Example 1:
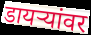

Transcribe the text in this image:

डायऱ्यांवर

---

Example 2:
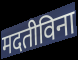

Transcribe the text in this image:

मदतीविना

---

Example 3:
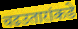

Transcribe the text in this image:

चढउतारांकडे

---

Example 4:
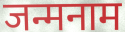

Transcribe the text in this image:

जन्मनाम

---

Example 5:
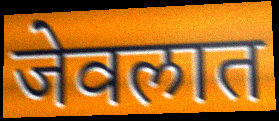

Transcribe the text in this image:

जेवलात